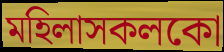
মহিলাসকলকো